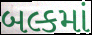
બલ્કમાં